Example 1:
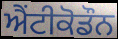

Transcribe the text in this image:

ਐਂਟੀਕੋਡੌਨ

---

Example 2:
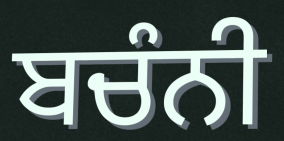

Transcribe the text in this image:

ਬਚੰਨੀ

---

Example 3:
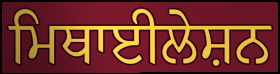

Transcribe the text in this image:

ਮਿਥਾਈਲੇਸ਼ਨ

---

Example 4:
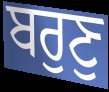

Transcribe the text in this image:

ਬਰੁਣੁ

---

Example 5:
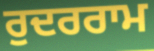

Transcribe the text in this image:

ਰੁਦਰਰਾਮ